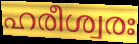
ഹരീശ്വരഃ